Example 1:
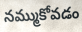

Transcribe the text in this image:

నమ్ముకోవడం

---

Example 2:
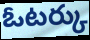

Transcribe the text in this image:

ఓటర్కు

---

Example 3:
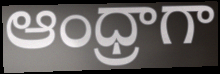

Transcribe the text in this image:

ఆంధ్రాగా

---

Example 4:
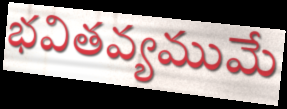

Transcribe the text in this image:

భవితవ్యముమే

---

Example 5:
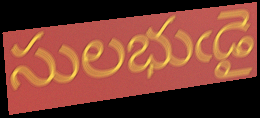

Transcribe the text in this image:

సులభుఁడై